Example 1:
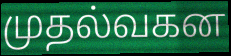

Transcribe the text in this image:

முதல்வகன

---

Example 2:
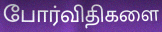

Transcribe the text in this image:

போர்விதிகளை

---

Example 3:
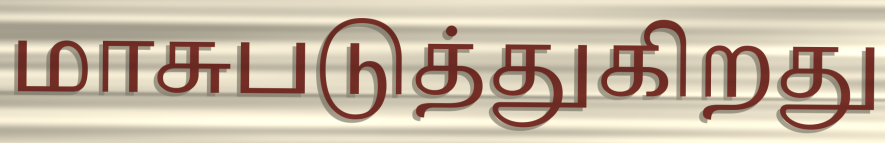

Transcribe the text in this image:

மாசுபடுத்துகிறது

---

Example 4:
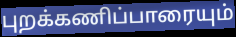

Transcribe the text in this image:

புறக்கணிப்பாரையும்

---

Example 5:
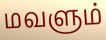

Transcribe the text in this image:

மவளும்